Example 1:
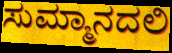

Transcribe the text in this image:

ಸುಮ್ಮಾನದಲಿ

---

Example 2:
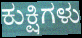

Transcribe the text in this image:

ಕುಕ್ಷಿಗಳು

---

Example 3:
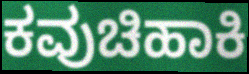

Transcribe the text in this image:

ಕವುಚಿಹಾಕಿ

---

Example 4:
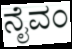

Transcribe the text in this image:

ನೈವಂ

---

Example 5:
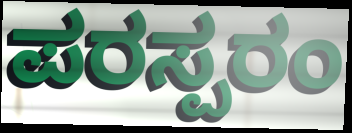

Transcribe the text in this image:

ಪರಸ್ಪರಂ